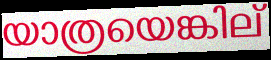
യാത്രയെങ്കില്